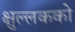
क्षुल्लकको